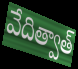
వేదిత్వాత్